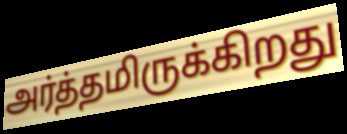
அர்த்தமிருக்கிறது